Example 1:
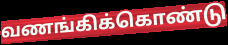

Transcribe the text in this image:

வணங்கிக்கொண்டு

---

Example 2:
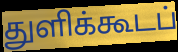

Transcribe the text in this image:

துளிக்கூடப்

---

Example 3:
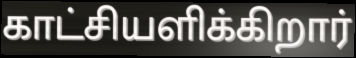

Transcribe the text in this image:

காட்சியளிக்கிறார்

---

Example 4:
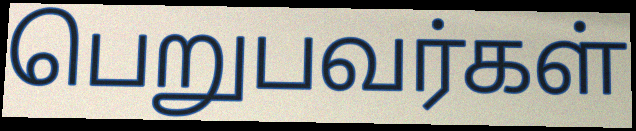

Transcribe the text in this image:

பெறுபவர்கள்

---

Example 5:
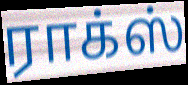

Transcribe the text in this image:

ராக்ஸ்